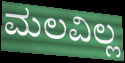
ಮಲವಿಲ್ಲ